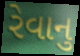
રેવાનુ